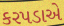
કરપડાએ